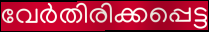
വേർതിരിക്കപ്പെട്ട